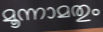
മൂന്നാമതും